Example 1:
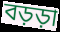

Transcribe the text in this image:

বড়ড়া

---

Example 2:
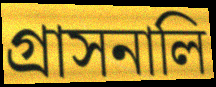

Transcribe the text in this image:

গ্রাসনালি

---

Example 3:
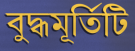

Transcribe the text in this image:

বুদ্ধমূর্তিটি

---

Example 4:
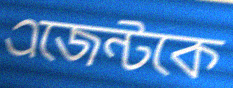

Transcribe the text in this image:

এজেন্টকে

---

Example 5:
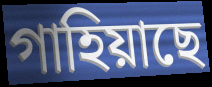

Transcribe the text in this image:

গাহিয়াছে